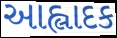
આહ્લાદક